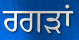
ਰਗੜਾਂ